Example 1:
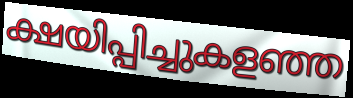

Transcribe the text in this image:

ക്ഷയിപ്പിച്ചുകളഞ്ഞ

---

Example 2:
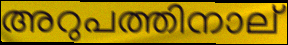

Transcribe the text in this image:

അറുപത്തിനാല്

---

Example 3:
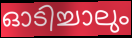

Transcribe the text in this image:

ഓടിച്ചാലും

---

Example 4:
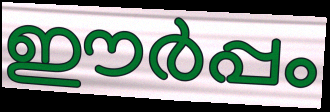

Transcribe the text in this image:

ഈർപ്പം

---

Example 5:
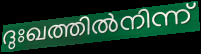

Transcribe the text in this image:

ദുഃഖത്തിൽനിന്ന്